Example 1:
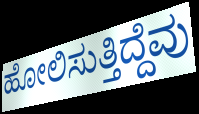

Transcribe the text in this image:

ಹೋಲಿಸುತ್ತಿದ್ದೆವು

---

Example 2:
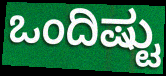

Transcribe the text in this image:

ಒಂದಿಷ್ಟು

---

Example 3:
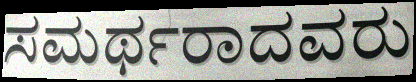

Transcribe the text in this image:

ಸಮರ್ಥರಾದವರು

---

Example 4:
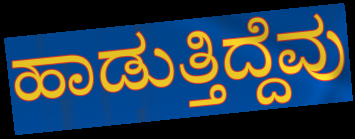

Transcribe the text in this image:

ಹಾಡುತ್ತಿದ್ದೆವು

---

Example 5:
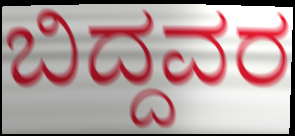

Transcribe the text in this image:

ಬಿದ್ದವರ